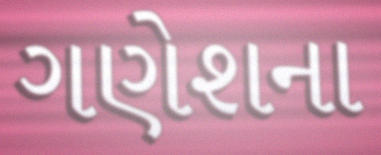
ગણેશના